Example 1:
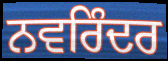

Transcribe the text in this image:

ਨਵਰਿੰਦਰ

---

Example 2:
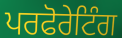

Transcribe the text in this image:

ਪਰਫੋਰੇਟਿੰਗ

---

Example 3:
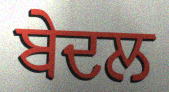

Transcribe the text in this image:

ਬੇਦਲ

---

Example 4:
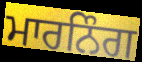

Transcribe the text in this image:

ਮਾਰਨਿੰਗ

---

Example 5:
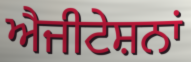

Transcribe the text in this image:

ਐਜੀਟੇਸ਼ਨਾਂ